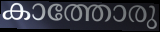
കാത്തോരു